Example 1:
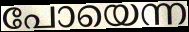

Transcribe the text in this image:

പോയെന്ന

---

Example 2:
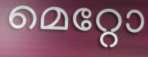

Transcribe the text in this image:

മെറ്റോ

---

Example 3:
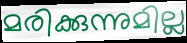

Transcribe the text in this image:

മരിക്കുന്നുമില്ല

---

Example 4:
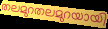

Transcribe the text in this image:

തലമുറതലമുറയായി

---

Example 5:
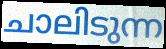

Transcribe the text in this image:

ചാലിടുന്ന